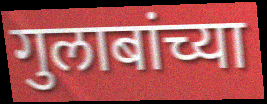
गुलाबांच्या